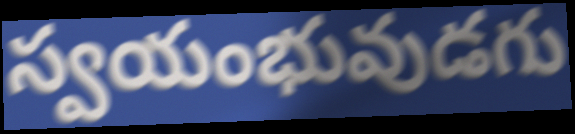
స్వయంభువుడగు